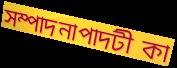
সম্পাদনাপাদটীকা